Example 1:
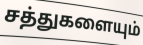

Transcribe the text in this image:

சத்துகளையும்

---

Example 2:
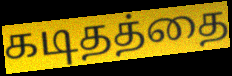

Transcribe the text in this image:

கடிதத்தை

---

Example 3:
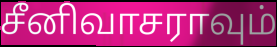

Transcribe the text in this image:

சீனிவாசராவும்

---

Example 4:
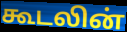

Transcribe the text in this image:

கூடலின்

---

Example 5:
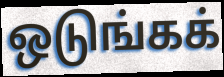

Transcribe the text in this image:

ஒடுங்கக்